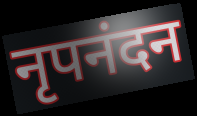
नृपनंदन